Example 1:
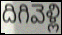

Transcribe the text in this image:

దిగివెళ్లి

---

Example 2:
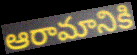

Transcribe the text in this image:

ఆరామానికి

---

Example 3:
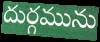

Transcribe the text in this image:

దుర్గమును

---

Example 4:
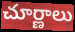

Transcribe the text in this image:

చూర్ణాలు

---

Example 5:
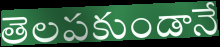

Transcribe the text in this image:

తెలపకుండానే